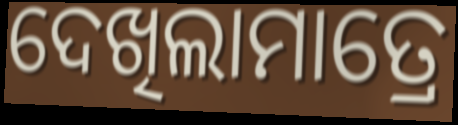
ଦେଖିଲାମାତ୍ରେ